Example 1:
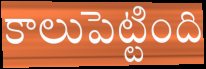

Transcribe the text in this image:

కాలుపెట్టింది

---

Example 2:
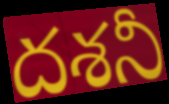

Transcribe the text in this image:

దశనీ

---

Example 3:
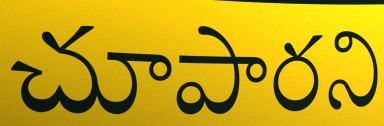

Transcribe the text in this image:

చూపారని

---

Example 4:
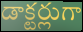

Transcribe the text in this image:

డాక్టర్లుగా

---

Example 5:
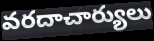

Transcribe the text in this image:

వరదాచార్యులు